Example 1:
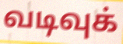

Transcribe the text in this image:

வடிவுக்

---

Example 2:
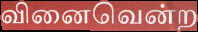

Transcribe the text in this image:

வினைவென்ற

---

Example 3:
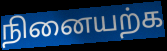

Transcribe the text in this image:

நினையற்க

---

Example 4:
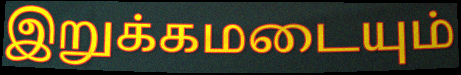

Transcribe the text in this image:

இறுக்கமடையும்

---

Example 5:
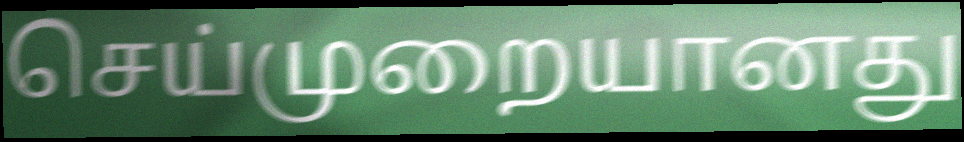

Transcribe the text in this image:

செய்முறையானது